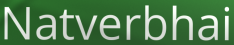
Natverbhai